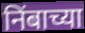
निंबाच्या